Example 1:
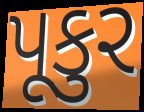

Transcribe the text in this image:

પૂકુર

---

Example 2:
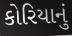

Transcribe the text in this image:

કોરિયાનું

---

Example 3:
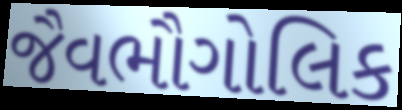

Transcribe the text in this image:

જૈવભૌગોલિક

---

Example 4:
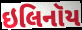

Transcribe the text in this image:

ઇલિનૉય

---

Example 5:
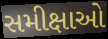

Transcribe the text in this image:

સમીક્ષાઓ